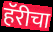
हॅरीचा